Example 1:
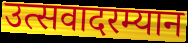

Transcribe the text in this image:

उत्सवादरम्यान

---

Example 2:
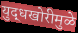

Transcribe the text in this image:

युद्धखोरीमुळे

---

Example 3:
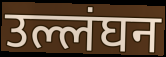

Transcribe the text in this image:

उल्लंघन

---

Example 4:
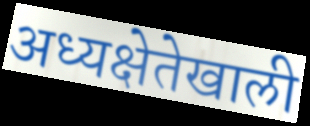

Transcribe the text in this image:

अध्यक्षेतेखाली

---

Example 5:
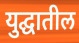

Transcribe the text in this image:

युद्घातील